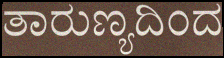
ತಾರುಣ್ಯದಿಂದ